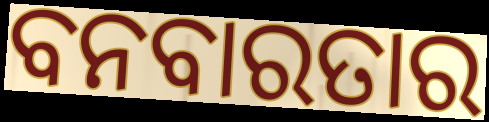
ବନବାରତାର